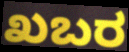
ಖಬರ